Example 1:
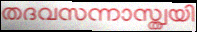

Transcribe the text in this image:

തദവസന്നാസ്ത്വയി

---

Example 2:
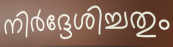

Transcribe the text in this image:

നിർദ്ദേശിച്ചതും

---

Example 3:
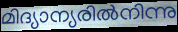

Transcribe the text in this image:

മിദ്യാന്യരിൽനിന്നു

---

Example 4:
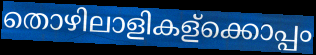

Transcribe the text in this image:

തൊഴിലാളികള്ക്കൊപ്പം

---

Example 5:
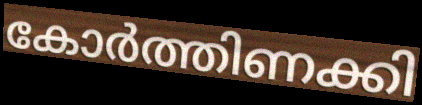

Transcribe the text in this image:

കോർത്തിണക്കി